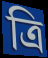
ত্ৰি